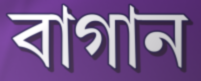
বাগান